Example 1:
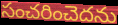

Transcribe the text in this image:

సంచరించెదను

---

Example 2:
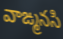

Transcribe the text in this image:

వాఙ్మనసి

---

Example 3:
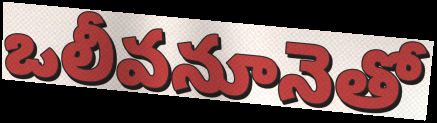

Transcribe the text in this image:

ఒలీవనూనెతో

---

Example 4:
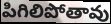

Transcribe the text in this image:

పిగిలిపోతావు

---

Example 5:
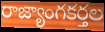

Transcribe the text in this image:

రాజ్యాంగకర్తల